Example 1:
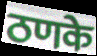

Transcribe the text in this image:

ठणके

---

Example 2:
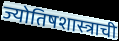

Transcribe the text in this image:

ज्योतिषशास्त्राची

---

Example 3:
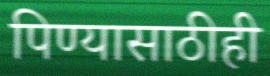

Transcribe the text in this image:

पिण्यासाठीही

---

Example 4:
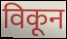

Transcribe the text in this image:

विकून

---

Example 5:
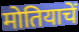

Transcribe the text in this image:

मोतियाचें